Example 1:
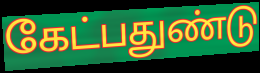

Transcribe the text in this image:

கேட்பதுண்டு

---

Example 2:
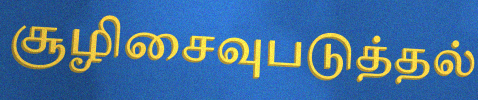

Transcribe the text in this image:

சூழிசைவுபடுத்தல்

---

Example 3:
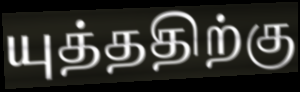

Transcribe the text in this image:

யுத்ததிற்கு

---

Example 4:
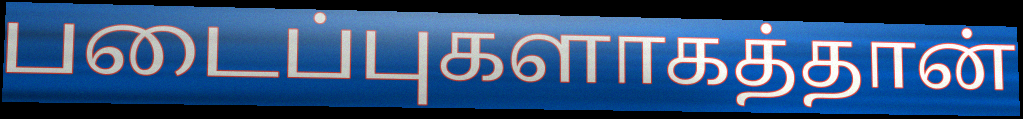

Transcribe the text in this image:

படைப்புகளாகத்தான்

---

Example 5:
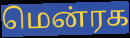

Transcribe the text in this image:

மென்ரக